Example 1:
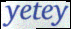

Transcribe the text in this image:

yetey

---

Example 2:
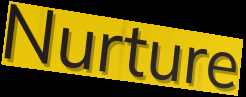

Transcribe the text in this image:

Nurture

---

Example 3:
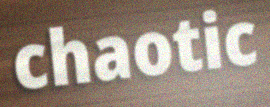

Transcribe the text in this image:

chaotic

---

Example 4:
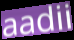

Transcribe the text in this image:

aadii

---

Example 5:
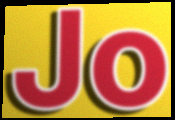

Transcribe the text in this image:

Jo